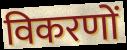
विकरणों